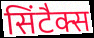
सिंटैक्स